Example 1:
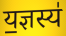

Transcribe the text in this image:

य॒ज्ञस्य॑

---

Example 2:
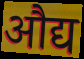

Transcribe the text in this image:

औद्य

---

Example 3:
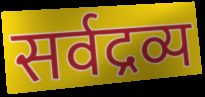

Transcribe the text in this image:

सर्वद्रव्य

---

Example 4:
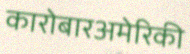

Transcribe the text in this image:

कारोबारअमेरिकी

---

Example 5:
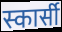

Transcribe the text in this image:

स्कार्सी